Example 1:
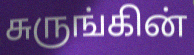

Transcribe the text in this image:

சுருங்கின்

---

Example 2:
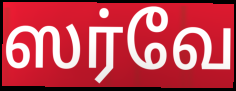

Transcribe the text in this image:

ஸர்வே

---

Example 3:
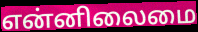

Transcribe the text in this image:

என்னிலைமை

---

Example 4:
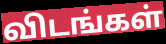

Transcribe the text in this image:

விடங்கள்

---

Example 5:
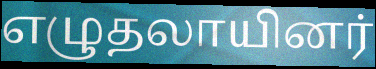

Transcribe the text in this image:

எழுதலாயினர்